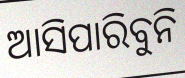
ଆସିପାରିବୁନି